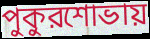
পুকুরশোভায়